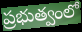
ప్రభుత్వంలో